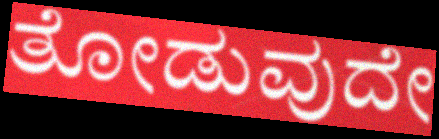
ತೋಡುವುದೇ